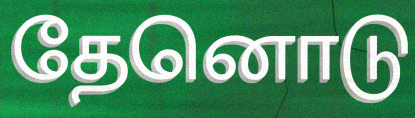
தேனொடு